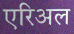
एरिअल